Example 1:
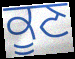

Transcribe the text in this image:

ਕੂਣ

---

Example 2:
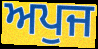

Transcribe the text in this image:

ਅਪੁਜ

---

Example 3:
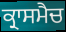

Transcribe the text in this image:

ਕ੍ਰਾਸਮੈਚ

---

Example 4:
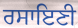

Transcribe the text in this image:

ਰਸਾਇਣੀ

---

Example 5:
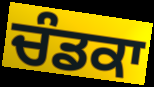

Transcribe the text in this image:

ਚੰਡਕਾ